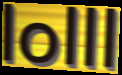
lolll